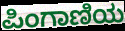
ಪಿಂಗಾಣಿಯ